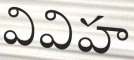
వివిహ